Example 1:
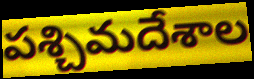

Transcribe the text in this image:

పశ్చిమదేశాల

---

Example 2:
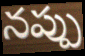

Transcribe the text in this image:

నప్పు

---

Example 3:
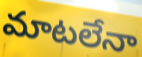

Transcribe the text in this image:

మాటలేనా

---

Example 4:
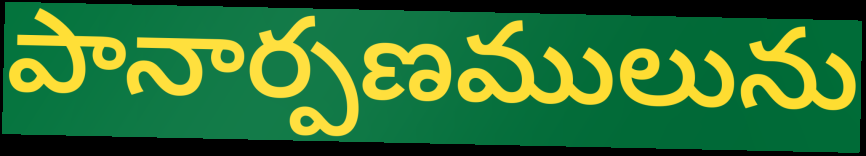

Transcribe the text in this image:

పానార్పణములును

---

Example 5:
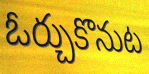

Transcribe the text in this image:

ఓర్చుకొనుట